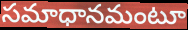
సమాధానమంటూ